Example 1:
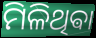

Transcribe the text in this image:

ମିଳିଥିଵା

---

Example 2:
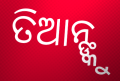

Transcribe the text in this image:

ତିଆନ୍ଙ୍କୁ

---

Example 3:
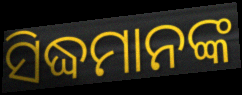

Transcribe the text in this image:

ସିଦ୍ଧମାନଙ୍କ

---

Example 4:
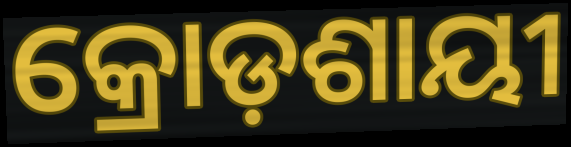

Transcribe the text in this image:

କ୍ରୋଡ଼ଶାୟୀ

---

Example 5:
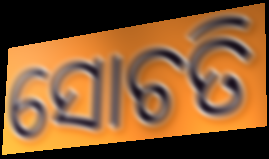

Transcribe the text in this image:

ସୋଚତି